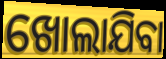
ଖୋଲାଯିବା